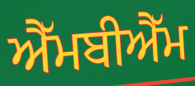
ਐੱਮਬੀਐੱਮ